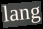
lang